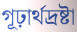
গূঢ়ার্থদ্রষ্টা